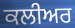
ਕਲੀਅਰ